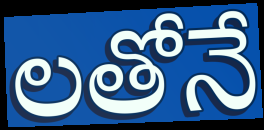
లతోనే